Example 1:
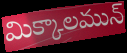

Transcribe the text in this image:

మిక్కాలమున్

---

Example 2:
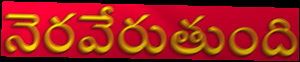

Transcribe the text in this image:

నెరవేరుతుంది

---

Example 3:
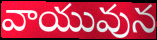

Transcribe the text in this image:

వాయువున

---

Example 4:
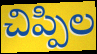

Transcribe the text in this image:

చిప్పిల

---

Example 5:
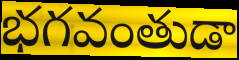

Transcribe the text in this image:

భగవంతుడా